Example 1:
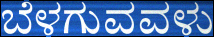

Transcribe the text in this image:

ಬೆಳಗುವವಳು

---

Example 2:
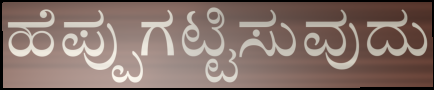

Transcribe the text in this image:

ಹೆಪ್ಪುಗಟ್ಟಿಸುವುದು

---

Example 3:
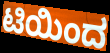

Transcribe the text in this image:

ಟಿಯಿಂದ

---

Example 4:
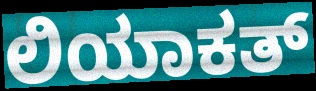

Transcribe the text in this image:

ಲಿಯಾಕತ್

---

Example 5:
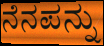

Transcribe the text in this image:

ನೆನಪನ್ನು